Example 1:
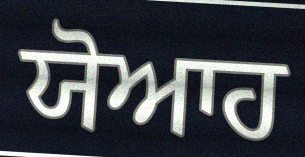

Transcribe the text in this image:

ਯੋਆਹ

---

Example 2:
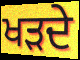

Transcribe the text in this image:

ਖੜਦੇ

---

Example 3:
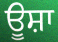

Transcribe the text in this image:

ਊਸ਼ਾ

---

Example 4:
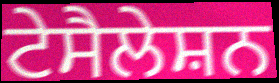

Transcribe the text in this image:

ਟੇਸੈਲੇਸ਼ਨ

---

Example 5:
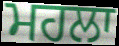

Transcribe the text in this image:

ਮਹਲਾ